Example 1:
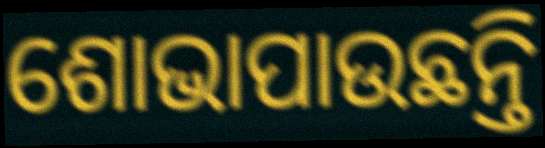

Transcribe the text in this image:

ଶୋଭାପାଉଛନ୍ତି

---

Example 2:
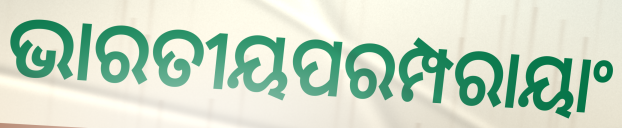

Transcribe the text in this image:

ଭାରତୀୟପରମ୍ପରାୟାଂ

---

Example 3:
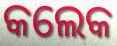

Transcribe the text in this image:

କଲେକ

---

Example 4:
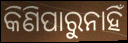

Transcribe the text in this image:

କିଣିପାରୁନାହିଁ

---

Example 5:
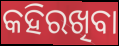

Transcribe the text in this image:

କହିରଖିବା